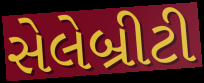
સેલેબ્રીટી